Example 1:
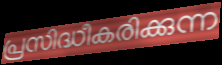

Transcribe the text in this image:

പ്രസിദ്ധീകരിക്കുന്ന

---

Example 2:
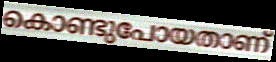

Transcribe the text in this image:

കൊണ്ടുപോയതാണ്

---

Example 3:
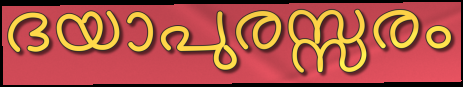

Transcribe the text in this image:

ദയാപുരസ്സരം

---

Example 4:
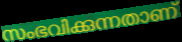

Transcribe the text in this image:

സംഭവിക്കുന്നതാണ്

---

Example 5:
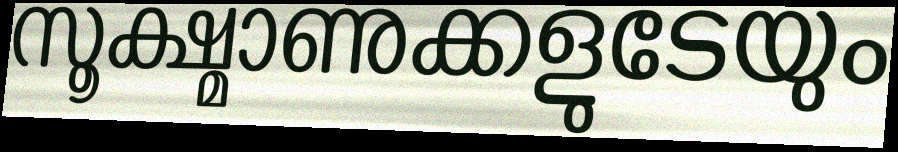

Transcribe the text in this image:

സൂക്ഷ്മാണുക്കളുടേയും